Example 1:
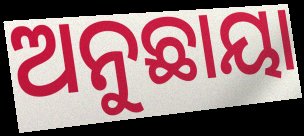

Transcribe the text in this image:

ଅନୁଛାୟା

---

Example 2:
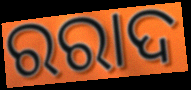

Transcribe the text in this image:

ରରାଦ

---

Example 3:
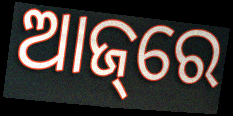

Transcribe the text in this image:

ଆଜ୍‌ରେ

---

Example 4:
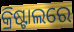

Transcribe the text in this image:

କ୍ରିଷ୍ଟାଲରେ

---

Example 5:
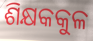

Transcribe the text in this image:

ଶିକ୍ଷକକୁଳ